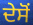
ਦੇਸੋਂ